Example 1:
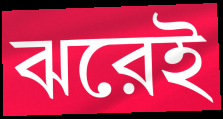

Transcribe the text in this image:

ঝরেই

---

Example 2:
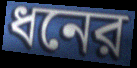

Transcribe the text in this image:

ধনের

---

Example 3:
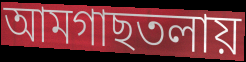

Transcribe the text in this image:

আমগাছতলায়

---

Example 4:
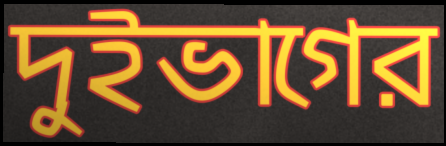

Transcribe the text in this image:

দুইভাগের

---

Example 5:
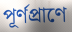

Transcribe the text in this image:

পূর্ণপ্রাণে